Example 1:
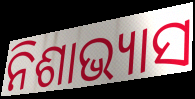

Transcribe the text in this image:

ନିଶାଭ୍ୟାସ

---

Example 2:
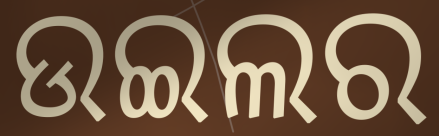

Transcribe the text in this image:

ଉଇଲର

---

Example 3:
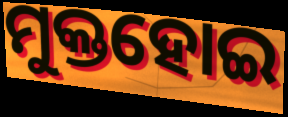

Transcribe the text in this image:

ମୁକ୍ତହୋଇ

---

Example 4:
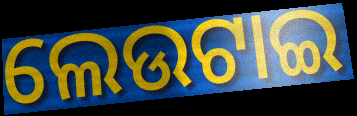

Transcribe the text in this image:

ଲେଉଟାଇ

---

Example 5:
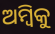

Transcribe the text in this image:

ଅମ୍ବିକୁ